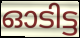
ഓടിട്ട